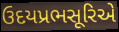
ઉદયપ્રભસૂરિએ